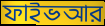
ফাইভআর